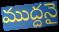
ముద్దనై